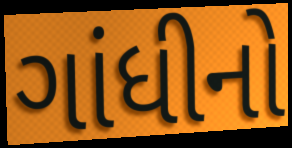
ગાંધીનો